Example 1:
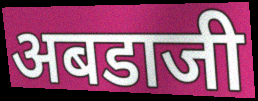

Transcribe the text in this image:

अबडाजी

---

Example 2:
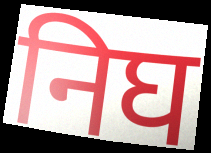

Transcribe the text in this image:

निघ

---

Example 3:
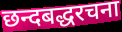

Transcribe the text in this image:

छन्दबद्धरचना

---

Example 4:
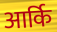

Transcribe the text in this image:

आर्कि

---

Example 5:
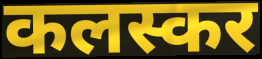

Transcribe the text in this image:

कलस्कर